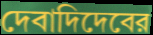
দেবাদিদেবের